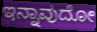
ಇನ್ನಾವುದೋ